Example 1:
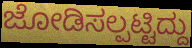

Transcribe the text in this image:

ಜೋಡಿಸಲ್ಪಟ್ಟಿದ್ದು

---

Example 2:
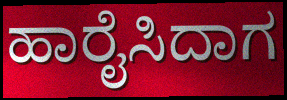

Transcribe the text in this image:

ಹಾರೈಸಿದಾಗ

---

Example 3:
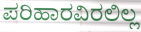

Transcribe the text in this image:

ಪರಿಹಾರವಿರಲಿಲ್ಲ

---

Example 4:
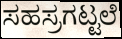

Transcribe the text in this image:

ಸಹಸ್ರಗಟ್ಟಲೆ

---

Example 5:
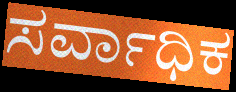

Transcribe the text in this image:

ಸರ್ವಾಧಿಕ